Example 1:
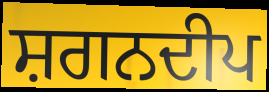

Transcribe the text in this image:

ਸ਼ਗਨਦੀਪ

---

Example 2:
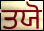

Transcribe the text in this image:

ਤਯੋ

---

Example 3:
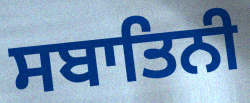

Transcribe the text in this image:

ਸਬਾਤਿਨੀ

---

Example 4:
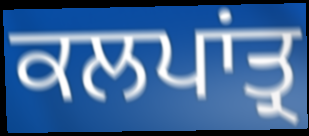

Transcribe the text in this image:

ਕਲਪਾਂਤ੍ਰ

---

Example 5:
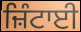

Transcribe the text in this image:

ਜ਼ਿੰਟਾਈ